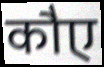
कौए